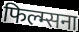
फिल्म्सना